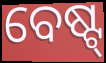
ବେଷ୍ଟ୍